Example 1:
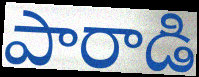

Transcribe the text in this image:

పారాడి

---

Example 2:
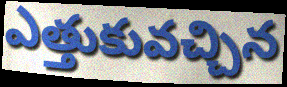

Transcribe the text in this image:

ఎత్తుకువచ్చిన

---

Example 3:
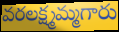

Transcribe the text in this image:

వరలక్ష్మమ్మగారు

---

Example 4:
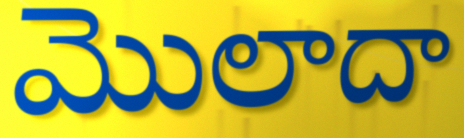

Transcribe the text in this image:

మొలాదా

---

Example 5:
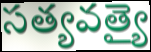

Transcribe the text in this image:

సత్యవత్యై